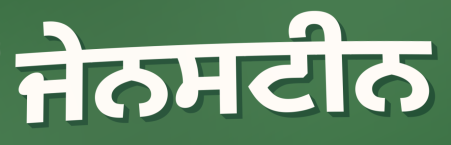
ਜੇਨਸਟੀਨ